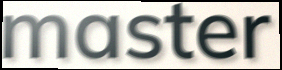
master